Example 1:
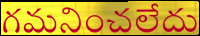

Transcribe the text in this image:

గమనించలేదు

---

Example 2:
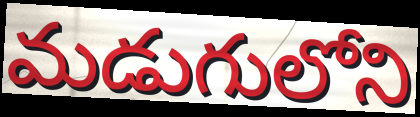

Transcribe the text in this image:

మడుగులోని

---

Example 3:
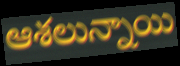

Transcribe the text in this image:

ఆశలున్నాయి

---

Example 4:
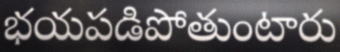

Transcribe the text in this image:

భయపడిపోతుంటారు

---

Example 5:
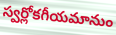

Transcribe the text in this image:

స్వర్లోకగీయమానుం